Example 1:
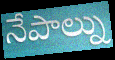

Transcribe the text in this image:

నేపాల్ను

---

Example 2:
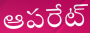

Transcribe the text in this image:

ఆపరేట్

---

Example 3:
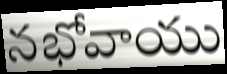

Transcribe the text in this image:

నభోవాయు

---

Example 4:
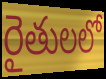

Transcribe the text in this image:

రైతులలో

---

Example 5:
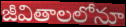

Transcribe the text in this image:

జీవితాలలోనూ